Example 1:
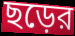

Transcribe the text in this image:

ছড়ের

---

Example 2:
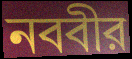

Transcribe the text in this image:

নববীর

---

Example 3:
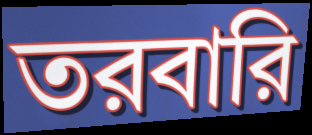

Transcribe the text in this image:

তরবারি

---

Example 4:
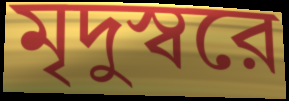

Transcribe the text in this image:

মৃদুস্বরে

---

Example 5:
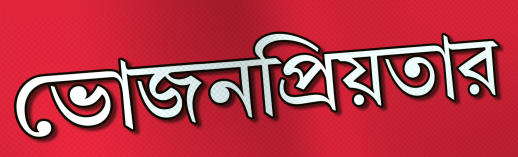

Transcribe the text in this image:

ভোজনপ্রিয়তার